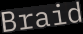
Braid